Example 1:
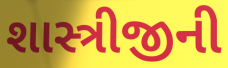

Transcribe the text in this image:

શાસ્ત્રીજીની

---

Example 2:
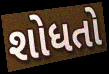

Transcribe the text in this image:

શોધતો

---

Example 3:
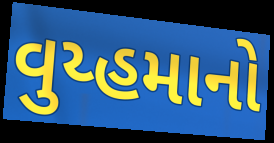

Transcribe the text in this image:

વુય્હમાનો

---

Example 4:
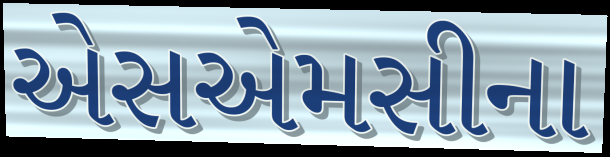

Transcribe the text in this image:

એસએમસીના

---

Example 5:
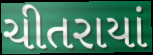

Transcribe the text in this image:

ચીતરાયાં